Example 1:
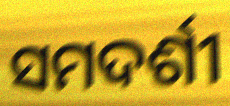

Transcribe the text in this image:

ସମଦର୍ଶୀ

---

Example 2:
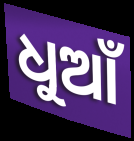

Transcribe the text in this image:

ଧୁଆଁ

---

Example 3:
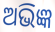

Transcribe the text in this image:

ଅଭିଜ୍ଞ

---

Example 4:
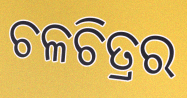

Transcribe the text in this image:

ଚଳଚିତ୍ରର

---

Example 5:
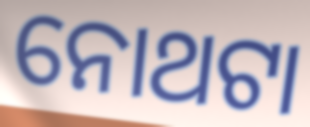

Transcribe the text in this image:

ନୋଥଟା